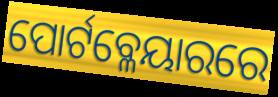
ପୋର୍ଟବ୍ଳେୟାରରେ